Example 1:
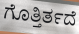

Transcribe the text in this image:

ಗೊತ್ತಿರ್ತದೆ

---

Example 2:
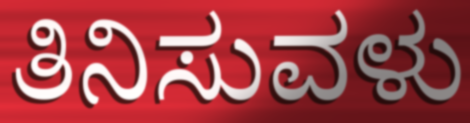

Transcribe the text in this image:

ತಿನಿಸುವಳು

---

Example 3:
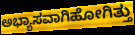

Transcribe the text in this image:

ಅಭ್ಯಾಸವಾಗಿಹೋಗಿತ್ತು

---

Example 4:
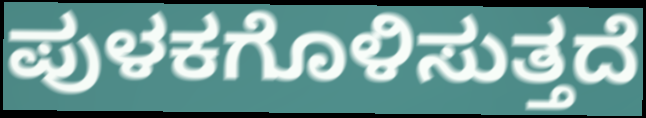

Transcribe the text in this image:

ಪುಳಕಗೊಳಿಸುತ್ತದೆ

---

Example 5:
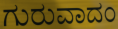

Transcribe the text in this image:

ಗುರುವಾದಂ